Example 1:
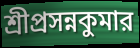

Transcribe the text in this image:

শ্রীপ্রসন্নকুমার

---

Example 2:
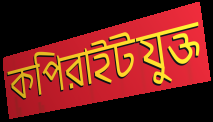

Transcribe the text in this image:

কপিরাইটযুক্ত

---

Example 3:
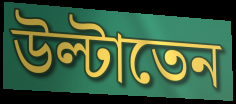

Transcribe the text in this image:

উল্টাতেন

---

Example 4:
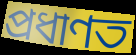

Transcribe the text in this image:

প্রধাণত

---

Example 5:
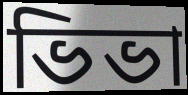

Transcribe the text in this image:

ভিভা